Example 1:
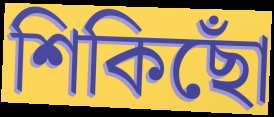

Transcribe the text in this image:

শিকিছোঁ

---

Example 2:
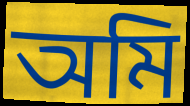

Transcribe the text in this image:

অমি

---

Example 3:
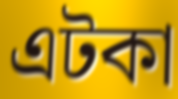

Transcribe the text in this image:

এটকা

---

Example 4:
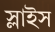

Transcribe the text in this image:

স্লাইস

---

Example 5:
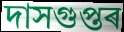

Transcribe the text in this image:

দাসগুপ্তৰ